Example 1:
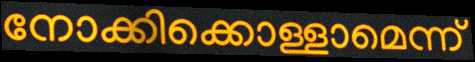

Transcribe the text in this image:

നോക്കിക്കൊള്ളാമെന്ന്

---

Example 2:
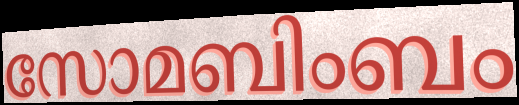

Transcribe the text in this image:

സോമബിംബം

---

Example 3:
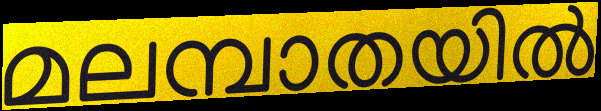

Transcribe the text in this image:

മലമ്പാതയിൽ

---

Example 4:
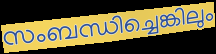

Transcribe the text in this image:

സംബന്ധിച്ചെങ്കിലും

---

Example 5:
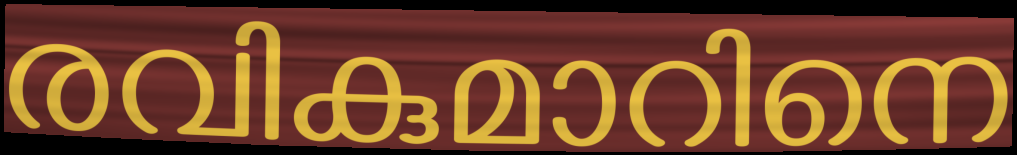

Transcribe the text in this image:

രവികുമാറിനെ